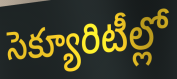
సెక్యూరిటీల్లో